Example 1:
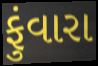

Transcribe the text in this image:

ફુંવારા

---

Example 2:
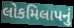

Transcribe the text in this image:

લોકમિલાપનું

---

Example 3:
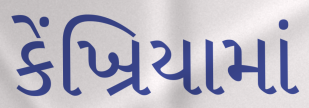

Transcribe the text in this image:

કેંખ્રિયામાં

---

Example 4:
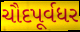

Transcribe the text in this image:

ચૌદપૂર્વધર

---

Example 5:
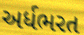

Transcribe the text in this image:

અર્ધભરત